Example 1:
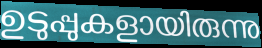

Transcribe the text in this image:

ഉടുപ്പുകളായിരുന്നു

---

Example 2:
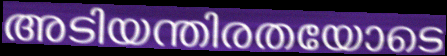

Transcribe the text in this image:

അടിയന്തിരതയോടെ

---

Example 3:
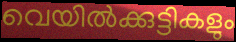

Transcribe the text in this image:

വെയിൽക്കുട്ടികളും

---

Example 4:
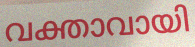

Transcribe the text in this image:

വക്താവായി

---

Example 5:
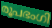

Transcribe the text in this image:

രൂപഭംഗി